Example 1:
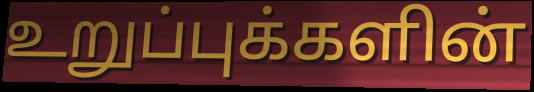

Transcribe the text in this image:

உறுப்புக்களின்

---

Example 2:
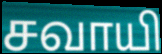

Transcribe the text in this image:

சவாயி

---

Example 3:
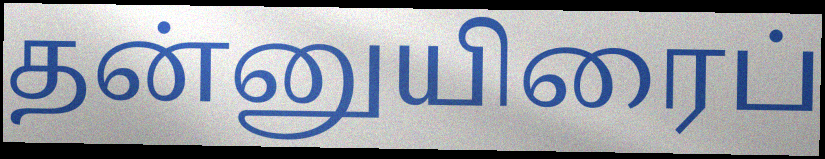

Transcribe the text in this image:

தன்னுயிரைப்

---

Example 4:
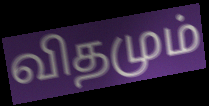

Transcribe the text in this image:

விதமும்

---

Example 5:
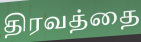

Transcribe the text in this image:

திரவத்தை